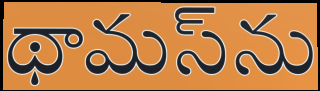
థామస్‌ను